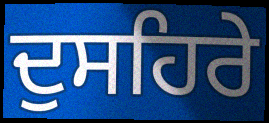
ਦੁਸਹਿਰੇ